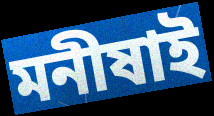
মনীষাই